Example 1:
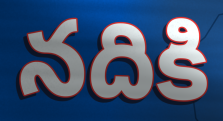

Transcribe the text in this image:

నదికి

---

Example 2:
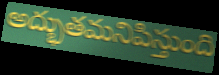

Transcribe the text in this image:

అద్భుతమనిపిస్తుంది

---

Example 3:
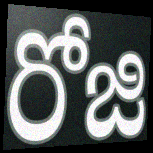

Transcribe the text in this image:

రోజి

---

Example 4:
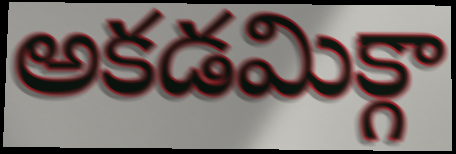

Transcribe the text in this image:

అకడమిక్గా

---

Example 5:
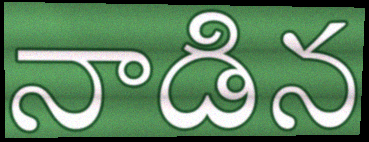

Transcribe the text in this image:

నాడిన